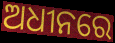
ଅଧୀନରେ